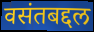
वसंतबद्दल